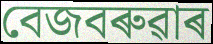
বেজবৰুৱাৰ